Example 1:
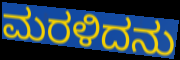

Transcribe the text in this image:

ಮರಳಿದನು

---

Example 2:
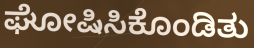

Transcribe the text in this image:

ಘೋಷಿಸಿಕೊಂಡಿತು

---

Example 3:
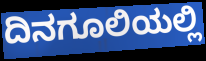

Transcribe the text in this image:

ದಿನಗೂಲಿಯಲ್ಲಿ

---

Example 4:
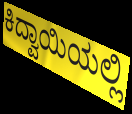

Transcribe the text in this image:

ಕಿದ್ವಾಯಿಯಲ್ಲಿ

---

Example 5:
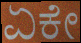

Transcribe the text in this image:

ಏಕೇ